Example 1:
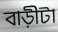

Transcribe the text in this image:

বাড়ীটা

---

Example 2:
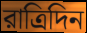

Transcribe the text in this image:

রাত্রিদিন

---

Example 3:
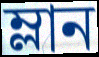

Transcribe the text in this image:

ম্লান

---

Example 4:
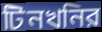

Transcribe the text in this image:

টিনখনির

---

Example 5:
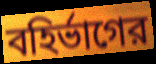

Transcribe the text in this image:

বহির্ভাগের